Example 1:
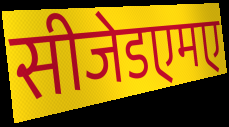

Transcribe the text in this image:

सीजेडएमए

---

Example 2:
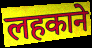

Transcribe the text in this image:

लहकाने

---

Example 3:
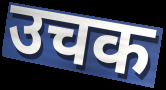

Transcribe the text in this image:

उचक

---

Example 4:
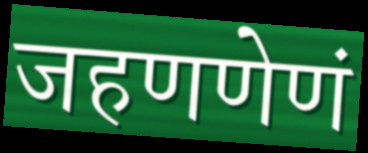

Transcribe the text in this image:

जहणणेणं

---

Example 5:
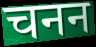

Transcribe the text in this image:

चनन